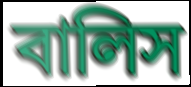
বালিস